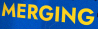
MERGING